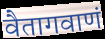
वैतागवाणं